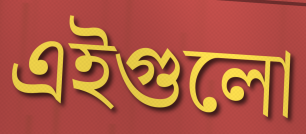
এইগুলো